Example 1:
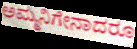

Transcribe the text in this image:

ಅಮ್ಮನಿಗೇನಾದರೂ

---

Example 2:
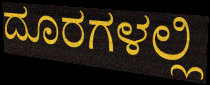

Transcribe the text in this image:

ದೂರಗಳಲ್ಲಿ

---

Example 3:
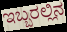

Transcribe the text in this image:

ಇಬ್ಬರಲ್ಲಿನ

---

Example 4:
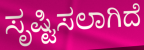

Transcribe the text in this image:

ಸೃಷ್ಟಿಸಲಾಗಿದೆ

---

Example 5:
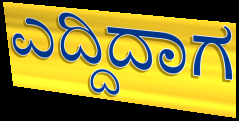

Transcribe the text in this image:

ಎದ್ದಿದಾಗ